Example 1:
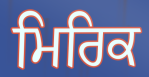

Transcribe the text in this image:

ਮਿਰਿਕ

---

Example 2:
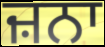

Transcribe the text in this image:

ਜ਼ਨਾ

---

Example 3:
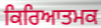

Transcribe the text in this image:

ਕਿਰਿਆਤਮਕ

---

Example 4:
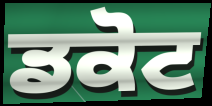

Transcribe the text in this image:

ਡਕੋਟ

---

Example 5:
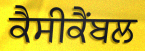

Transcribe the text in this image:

ਕੈਸੀਕੈਂਬਲ